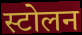
स्टोलन